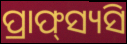
ପ୍ରାଫ୍‌ସ୍ୟସି